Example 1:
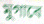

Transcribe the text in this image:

মুগাবে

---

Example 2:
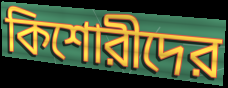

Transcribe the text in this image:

কিশোরীদের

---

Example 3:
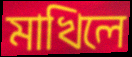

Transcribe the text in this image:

মাখিলে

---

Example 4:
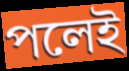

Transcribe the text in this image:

পলেই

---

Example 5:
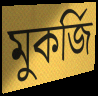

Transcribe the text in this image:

মুকর্জি